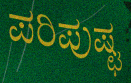
ಪರಿಪುಷ್ಟ